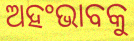
ଅହଂଭାବକୁ